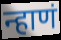
न्हाणं